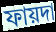
ফায়দা